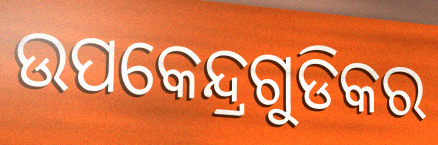
ଉପକେନ୍ଦ୍ରଗୁଡିକର